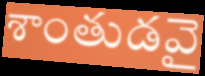
శాంతుడవై